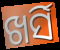
ଖର୍ସି